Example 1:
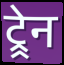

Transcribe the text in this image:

ट्र्रेन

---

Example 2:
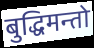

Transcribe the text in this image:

बुद्धिमन्तो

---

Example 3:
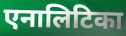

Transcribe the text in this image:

एनालिटिका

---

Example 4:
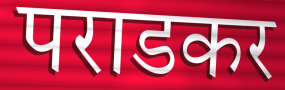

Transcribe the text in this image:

पराडकर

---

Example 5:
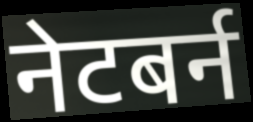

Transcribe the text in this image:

नेटबर्न